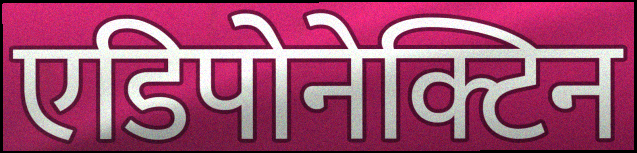
एडिपोनेक्टिन